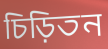
চিড়িতন